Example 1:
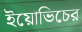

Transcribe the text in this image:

ইয়োভিচের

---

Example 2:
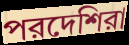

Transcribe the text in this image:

পরদেশিরা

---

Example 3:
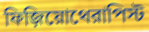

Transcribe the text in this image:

ফিজ়িয়োথেরাপিস্ট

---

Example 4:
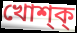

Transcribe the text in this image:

খোশ্ক্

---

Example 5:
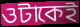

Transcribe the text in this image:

ওটাকেই